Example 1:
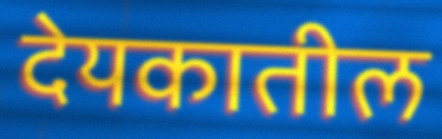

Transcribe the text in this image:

देयकातील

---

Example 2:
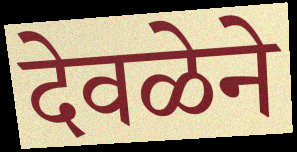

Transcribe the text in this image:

देवळेने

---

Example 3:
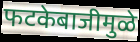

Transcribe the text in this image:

फटकेबाजीमुळे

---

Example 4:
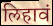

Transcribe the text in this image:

लिहावं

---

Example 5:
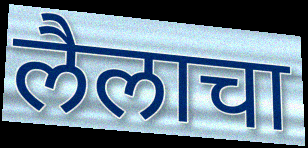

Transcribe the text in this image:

लैलाचा